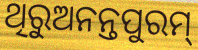
ଥିରୁଅନନ୍ତପୁରମ୍